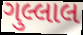
ગુલ્લાલ